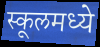
स्कूलमध्ये